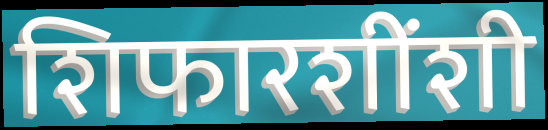
शिफारशींशी